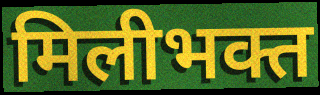
मिलीभक्त